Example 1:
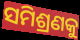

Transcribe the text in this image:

ସମିଶ୍ରଣକୁ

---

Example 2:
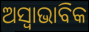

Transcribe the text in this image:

ଅସ୍ଵାଭାବିକ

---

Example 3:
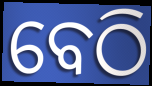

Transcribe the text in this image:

ବେଠି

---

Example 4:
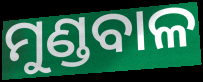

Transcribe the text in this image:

ମୁଣ୍ଡବାଳ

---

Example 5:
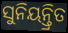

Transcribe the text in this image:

ସୁନିୟନ୍ତ୍ରିତ